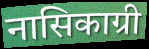
नासिकाग्री